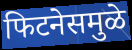
फिटनेसमुळे